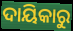
ଦାୟିକାରୁ